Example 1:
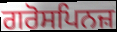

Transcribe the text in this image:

ਗਰੋਸਪਿਨਜ਼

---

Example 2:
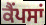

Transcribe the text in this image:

ਕੈਂਪਸਾਂ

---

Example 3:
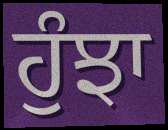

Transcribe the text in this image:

ਹੁੰਝਾ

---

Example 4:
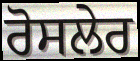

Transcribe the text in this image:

ਰੋਸਲੇਰ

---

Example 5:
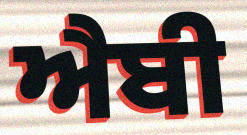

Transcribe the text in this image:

ਐਬੀ